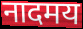
नादमय